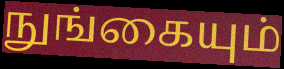
நுங்கையும்